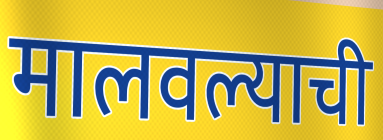
मालवल्याची